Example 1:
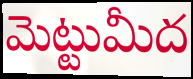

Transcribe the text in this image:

మెట్టుమీద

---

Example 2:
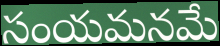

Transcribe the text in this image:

సంయమనమే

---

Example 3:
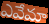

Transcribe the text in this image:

ఎవేమా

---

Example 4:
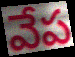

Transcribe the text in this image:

వేప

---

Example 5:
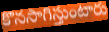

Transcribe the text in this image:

కొనసాగిస్తుంటారు